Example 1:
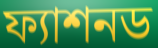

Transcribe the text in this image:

ফ্যাশনড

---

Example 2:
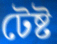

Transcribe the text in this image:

টেষ্ট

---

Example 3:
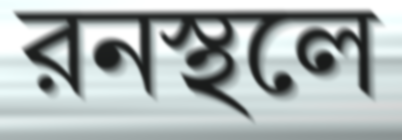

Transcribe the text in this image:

রনস্থলে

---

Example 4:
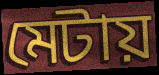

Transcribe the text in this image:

মেটায়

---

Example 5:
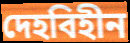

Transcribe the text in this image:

দেহবিহীন